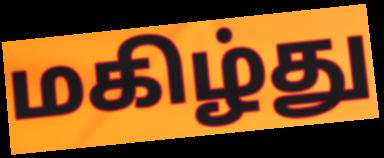
மகிழ்து